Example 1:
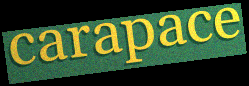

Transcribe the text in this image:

carapace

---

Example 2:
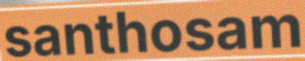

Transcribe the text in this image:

santhosam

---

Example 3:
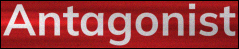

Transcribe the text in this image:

Antagonist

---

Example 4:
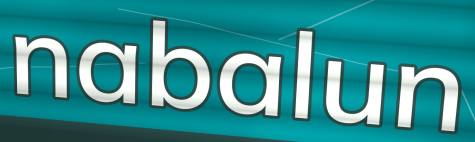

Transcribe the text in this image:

nabalun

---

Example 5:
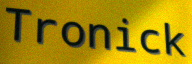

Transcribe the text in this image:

Tronick